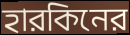
হারকিনের